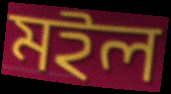
মইল